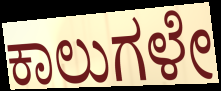
ಕಾಲುಗಳೇ